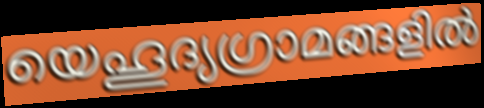
യെഹൂദ്യഗ്രാമങ്ങളിൽ